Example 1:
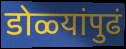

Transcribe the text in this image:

डोळ्यांपुढं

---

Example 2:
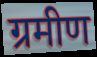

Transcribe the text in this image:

ग्रमीण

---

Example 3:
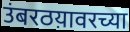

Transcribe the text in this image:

उंबरठय़ावरच्या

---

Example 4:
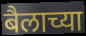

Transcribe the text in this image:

बैलाच्या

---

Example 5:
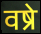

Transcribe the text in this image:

वष्रे